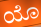
ಯೊ